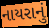
નાયરાનું